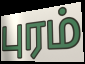
புரம்